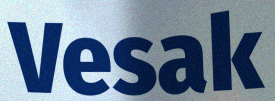
Vesak